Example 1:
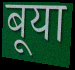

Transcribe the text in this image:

बूया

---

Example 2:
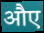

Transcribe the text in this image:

औए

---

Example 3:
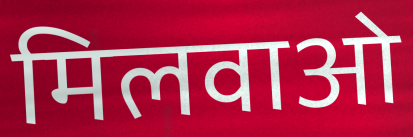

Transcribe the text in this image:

मिलवाओ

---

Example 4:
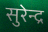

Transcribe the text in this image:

सुरेन्द्र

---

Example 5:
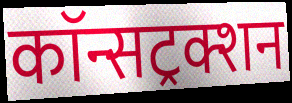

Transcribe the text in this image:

कॉन्सट्रक्शन